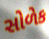
સોળેક